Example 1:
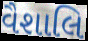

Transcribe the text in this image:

વૈશાલિ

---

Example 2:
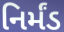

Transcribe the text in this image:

નિર્મંડ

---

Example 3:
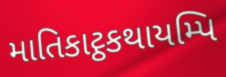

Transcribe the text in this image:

માતિકાટ્ઠકથાયમ્પિ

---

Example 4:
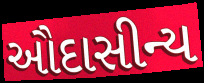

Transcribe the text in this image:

ઔદાસીન્ય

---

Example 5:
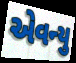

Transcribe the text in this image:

એવન્યુ